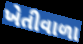
ખેતીવાળા